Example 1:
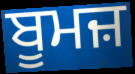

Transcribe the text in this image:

ਬੂਮਜ਼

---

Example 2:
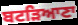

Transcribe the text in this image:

ਬਟੜਿਆਣਾ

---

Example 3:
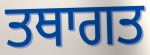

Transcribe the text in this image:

ਤਥਾਗਤ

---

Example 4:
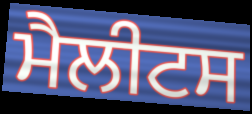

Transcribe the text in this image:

ਮੈਲੀਟਸ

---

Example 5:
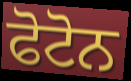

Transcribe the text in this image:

ਫੋਟੋਨ